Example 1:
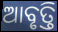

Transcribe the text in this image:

ଆବୃତ୍ତି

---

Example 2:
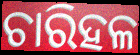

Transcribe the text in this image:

ଚାରିହଳ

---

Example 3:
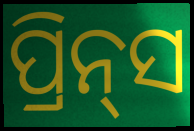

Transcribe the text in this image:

ପ୍ରିନ୍‍ସ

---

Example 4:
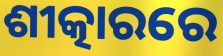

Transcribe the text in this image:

ଶୀତ୍କାରରେ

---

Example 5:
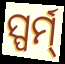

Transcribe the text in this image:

ସ୍ପର୍ମ୍